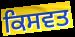
ਕਿਸਵਤ